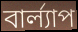
বার্ল্যাপ